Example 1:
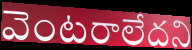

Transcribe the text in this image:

వెంటరాలేదని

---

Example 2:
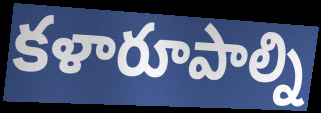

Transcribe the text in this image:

కళారూపాల్ని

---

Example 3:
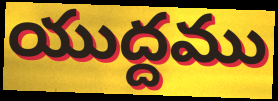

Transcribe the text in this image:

యుద్దము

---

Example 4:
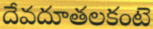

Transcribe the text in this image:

దేవదూతలకంటె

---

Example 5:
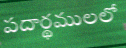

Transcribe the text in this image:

పదార్థములలో